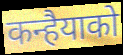
कन्हैयाको